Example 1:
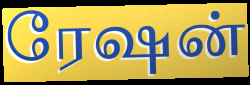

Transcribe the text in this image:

ரேஷன்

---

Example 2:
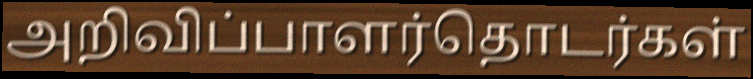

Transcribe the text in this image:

அறிவிப்பாளர்தொடர்கள்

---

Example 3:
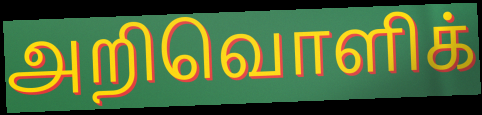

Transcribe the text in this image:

அறிவொளிக்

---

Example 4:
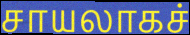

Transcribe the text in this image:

சாயலாகச்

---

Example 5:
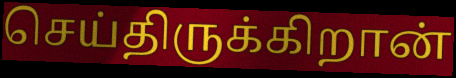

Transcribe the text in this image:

செய்திருக்கிறான்